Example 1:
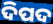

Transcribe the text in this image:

ଦିପଦ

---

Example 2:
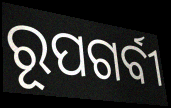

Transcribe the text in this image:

ରୂପଗର୍ବୀ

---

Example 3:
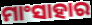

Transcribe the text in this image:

ମାଂସାହାର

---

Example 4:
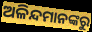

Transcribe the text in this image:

ଅଳିନ୍ଦମାନଙ୍କରୁ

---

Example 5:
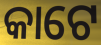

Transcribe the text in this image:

କାଟେ